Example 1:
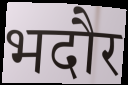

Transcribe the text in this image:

भदौर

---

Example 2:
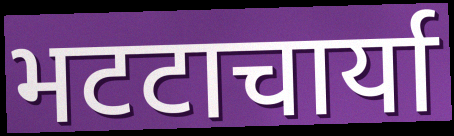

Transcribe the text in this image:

भटटाचार्या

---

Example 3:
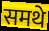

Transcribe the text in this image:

समथे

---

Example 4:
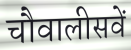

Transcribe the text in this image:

चौवालीसवें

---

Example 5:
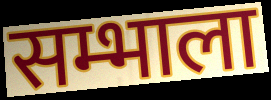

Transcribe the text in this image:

सम्भाला